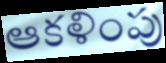
ఆకళింపు